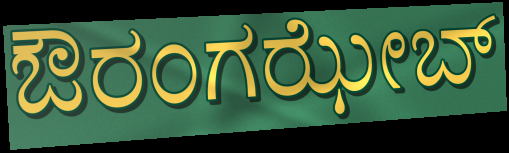
ಔರಂಗಝೇಬ್